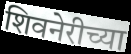
शिवनेरीच्या